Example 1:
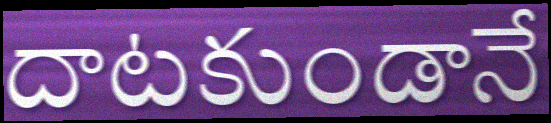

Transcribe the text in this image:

దాటకుండానే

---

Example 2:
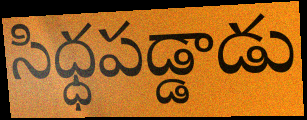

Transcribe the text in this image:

సిధ్ధపడ్డాడు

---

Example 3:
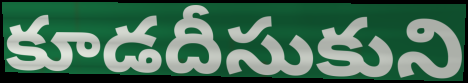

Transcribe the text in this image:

కూడదీసుకుని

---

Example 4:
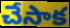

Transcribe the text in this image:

చేసాక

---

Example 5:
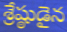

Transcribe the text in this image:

శ్రేష్ఠుడైన